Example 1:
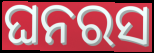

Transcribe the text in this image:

ଘନରସ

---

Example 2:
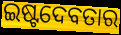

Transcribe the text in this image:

ଇଷ୍ଟଦେବତାର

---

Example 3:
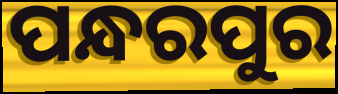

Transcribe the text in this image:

ପନ୍ଧରପୁର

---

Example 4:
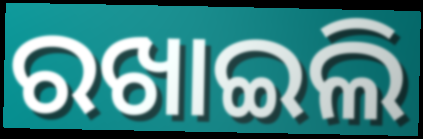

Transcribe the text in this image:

ରଖାଇଲି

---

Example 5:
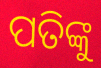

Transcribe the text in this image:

ପତିଙ୍କୁ